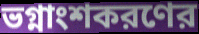
ভগ্নাংশকরণের